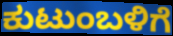
ಕುಟುಂಬಳಿಗೆ